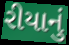
રીયાનું